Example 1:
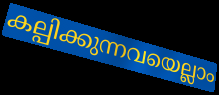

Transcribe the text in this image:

കല്പിക്കുന്നവയെല്ലാം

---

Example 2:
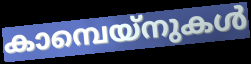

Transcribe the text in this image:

കാമ്പെയ്നുകൾ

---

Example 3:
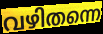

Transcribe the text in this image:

വഴിതന്നെ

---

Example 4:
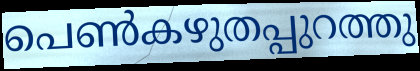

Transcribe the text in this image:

പെൺകഴുതപ്പുറത്തു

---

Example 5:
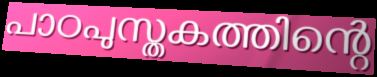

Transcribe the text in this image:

പാഠപുസ്തകത്തിന്റെ